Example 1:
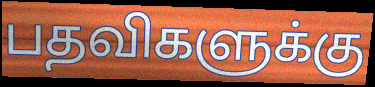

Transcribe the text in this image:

பதவிகளுக்கு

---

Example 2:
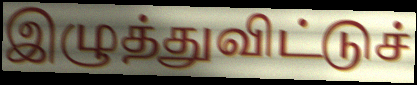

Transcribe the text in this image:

இழுத்துவிட்டுச்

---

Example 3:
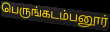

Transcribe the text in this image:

பெருங்கடம்பனூர்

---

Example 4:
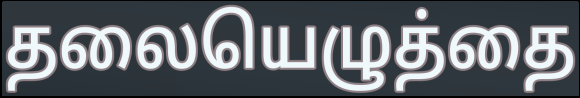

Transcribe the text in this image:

தலையெழுத்தை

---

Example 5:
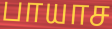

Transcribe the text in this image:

பாயாச